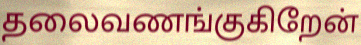
தலைவணங்குகிறேன்